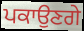
ਪਕਾਉਣਗੇ